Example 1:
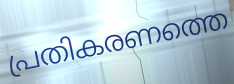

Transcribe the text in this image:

പ്രതികരണത്തെ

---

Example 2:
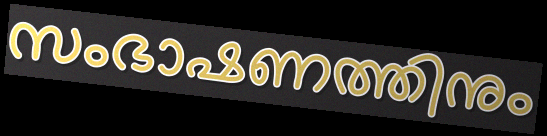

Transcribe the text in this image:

സംഭാഷണത്തിനും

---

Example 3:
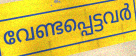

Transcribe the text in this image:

വേണ്ടപ്പെട്ടവർ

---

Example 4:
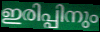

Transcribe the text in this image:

ഇരിപ്പിനും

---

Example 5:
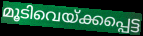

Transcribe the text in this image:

മൂടിവെയ്ക്കപ്പെട്ട